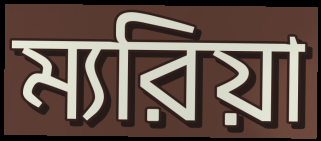
ম্যরিয়া